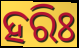
ହରିଃ